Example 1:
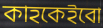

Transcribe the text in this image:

কাহকেইবো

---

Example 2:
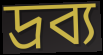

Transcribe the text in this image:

দ্রব্য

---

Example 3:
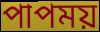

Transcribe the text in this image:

পাপময়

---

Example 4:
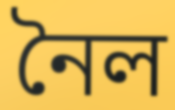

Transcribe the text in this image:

নৈল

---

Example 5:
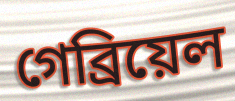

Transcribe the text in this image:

গেব্রিয়েল